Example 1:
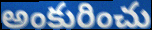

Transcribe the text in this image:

అంకురించు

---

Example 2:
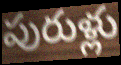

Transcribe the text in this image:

పురుళ్లు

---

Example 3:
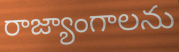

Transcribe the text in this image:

రాజ్యాంగాలను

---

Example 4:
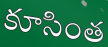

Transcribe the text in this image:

కూసింత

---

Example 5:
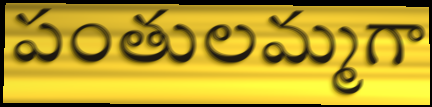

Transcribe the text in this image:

పంతులమ్మగా